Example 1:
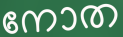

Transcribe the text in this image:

നോത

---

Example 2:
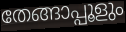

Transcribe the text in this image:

തേങ്ങാപ്പൂളും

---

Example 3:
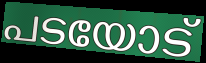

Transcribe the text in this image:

പടയോട്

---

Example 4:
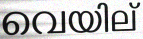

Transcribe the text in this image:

വെയില്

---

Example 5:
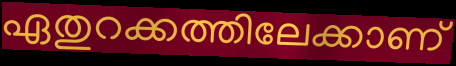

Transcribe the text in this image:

ഏതുറക്കത്തിലേക്കാണ്